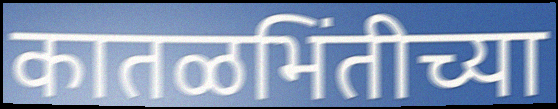
कातळभिंतीच्या